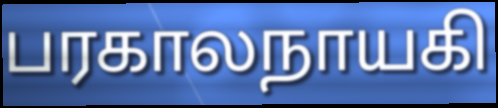
பரகாலநாயகி